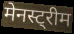
मेनस्ट्रीम